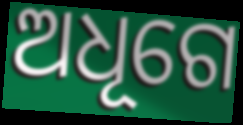
ଅଧୂଗେ